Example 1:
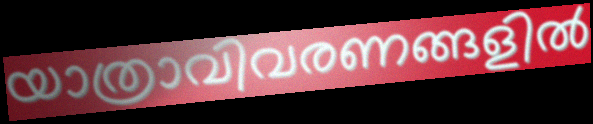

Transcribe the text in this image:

യാത്രാവിവരണങ്ങളിൽ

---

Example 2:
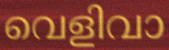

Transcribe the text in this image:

വെളിവാ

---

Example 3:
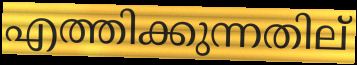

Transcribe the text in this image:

എത്തിക്കുന്നതില്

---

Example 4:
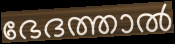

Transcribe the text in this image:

ഭേദത്താൽ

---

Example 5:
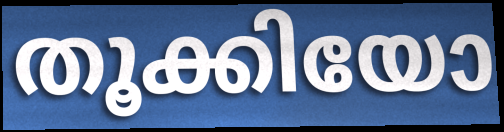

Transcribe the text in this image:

തൂക്കിയോ